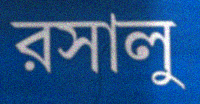
রসালু